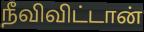
நீவிவிட்டான்